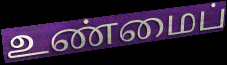
உண்மைப்